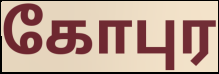
கோபுர